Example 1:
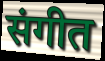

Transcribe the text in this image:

संगीत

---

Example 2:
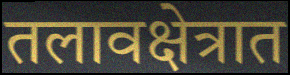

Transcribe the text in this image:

तलावक्षेत्रात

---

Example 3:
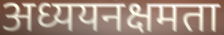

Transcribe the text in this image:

अध्ययनक्षमता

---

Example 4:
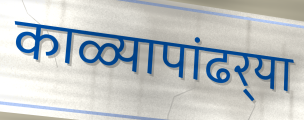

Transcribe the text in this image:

काळ्यापांढर्‍या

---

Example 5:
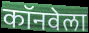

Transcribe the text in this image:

कॉनवेला